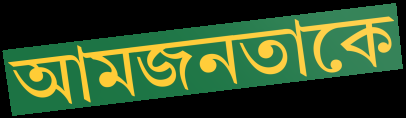
আমজনতাকে